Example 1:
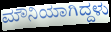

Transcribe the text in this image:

ಮೌನಿಯಾಗಿದ್ದಳು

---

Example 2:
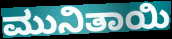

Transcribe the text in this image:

ಮುನಿತಾಯಿ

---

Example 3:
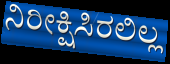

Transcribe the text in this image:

ನಿರೀಕ್ಷಿಸಿರಲಿಲ್ಲ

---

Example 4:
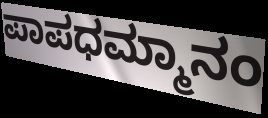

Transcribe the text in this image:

ಪಾಪಧಮ್ಮಾನಂ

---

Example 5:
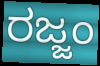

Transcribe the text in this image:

ರಜ್ಜಂ